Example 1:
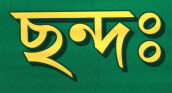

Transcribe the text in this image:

ছন্দঃ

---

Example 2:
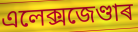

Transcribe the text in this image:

এলেক্সজেণ্ডাৰ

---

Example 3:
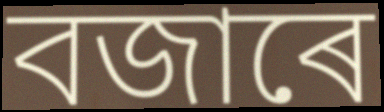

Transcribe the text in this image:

বজাৰে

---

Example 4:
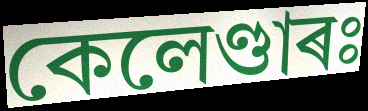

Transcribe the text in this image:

কেলেণ্ডাৰঃ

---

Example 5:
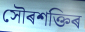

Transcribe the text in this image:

সৌৰশক্তিৰ